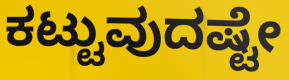
ಕಟ್ಟುವುದಷ್ಟೇ